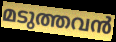
മടുത്തവൻ